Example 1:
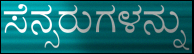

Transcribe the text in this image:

ಸೆನ್ಸರುಗಳನ್ನು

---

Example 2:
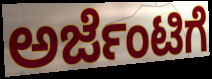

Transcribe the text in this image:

ಅರ್ಜೆಂಟಿಗೆ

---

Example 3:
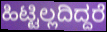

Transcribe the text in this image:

ಹಿಟ್ಟಿಲ್ಲದಿದ್ದರೆ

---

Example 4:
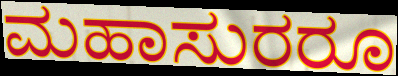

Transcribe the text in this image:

ಮಹಾಸುರರೂ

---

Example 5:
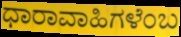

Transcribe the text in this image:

ಧಾರಾವಾಹಿಗಳೆಂಬ